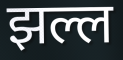
झल्ल